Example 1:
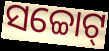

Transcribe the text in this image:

ସଚ୍ଚୋଟ୍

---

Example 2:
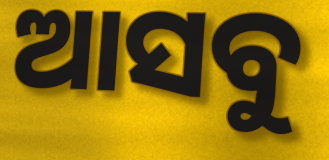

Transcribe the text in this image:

ଆସବୁ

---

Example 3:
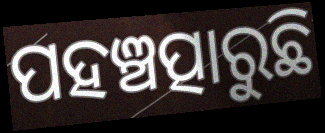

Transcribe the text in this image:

ପହଞ୍ଚତ୍ପାରୁଛି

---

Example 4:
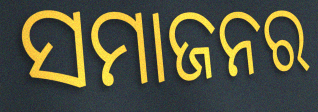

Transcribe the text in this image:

ସମାଜନର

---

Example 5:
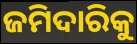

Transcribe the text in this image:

ଜମିଦାରିକୁ